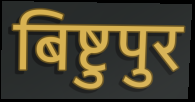
बिष्टुपुर